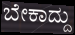
ಬೇಕಾದ್ದು